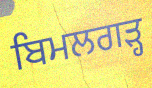
ਬਿਮਲਗੜ੍ਹ